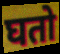
घतो